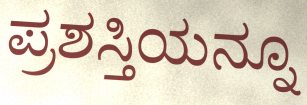
ಪ್ರಶಸ್ತಿಯನ್ನೂ